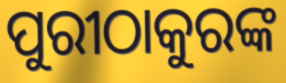
ପୁରୀଠାକୁରଙ୍କ